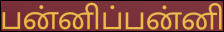
பன்னிப்பன்னி